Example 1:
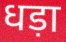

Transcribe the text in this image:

धड़ा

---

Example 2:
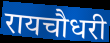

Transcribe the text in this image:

रायचौधरी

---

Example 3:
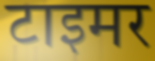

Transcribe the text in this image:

टाइमर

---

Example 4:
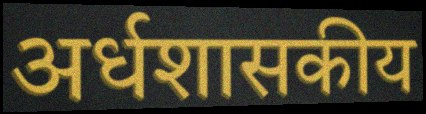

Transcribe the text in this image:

अर्धशासकीय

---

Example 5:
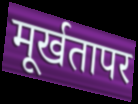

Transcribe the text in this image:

मूर्खतापर